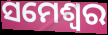
ସମେଶ୍ୱର